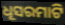
ଧୂସରମାଟି